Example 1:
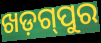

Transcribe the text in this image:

ଖଡ଼ଗ୍‌ପୁର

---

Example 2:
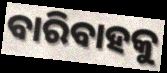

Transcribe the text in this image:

ବାରିବାହକୁ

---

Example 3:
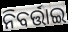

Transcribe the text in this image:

ନିବର୍ତ୍ତାଇ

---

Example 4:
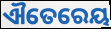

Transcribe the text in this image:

ଐତେରେୟ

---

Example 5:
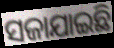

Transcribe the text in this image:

ସଜାଯାଇଛି